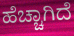
ಹೆಚ್ಚಾಗಿದೆ